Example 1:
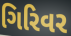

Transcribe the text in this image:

ગિરિવર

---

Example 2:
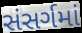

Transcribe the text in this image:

સંસર્ગમાં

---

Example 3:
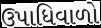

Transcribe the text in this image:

ઉપાધિવાળો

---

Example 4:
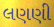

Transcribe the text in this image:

લણણી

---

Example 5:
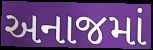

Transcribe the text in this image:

અનાજમાં